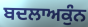
ਬਦਲਾਅਕੁੰਨ